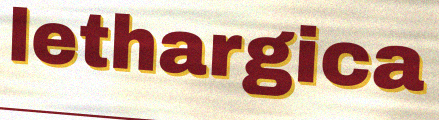
lethargica